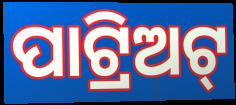
ପାଟ୍ରିଅଟ୍